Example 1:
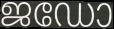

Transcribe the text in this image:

ജഡോ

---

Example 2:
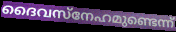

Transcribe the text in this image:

ദൈവസ്നേഹമുണ്ടെന്ന്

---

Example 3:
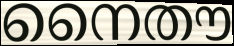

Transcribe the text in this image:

നൈതൗ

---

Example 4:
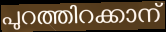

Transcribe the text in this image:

പുറത്തിറക്കാന്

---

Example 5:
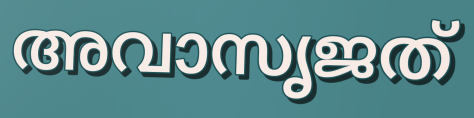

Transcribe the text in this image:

അവാസൃജത്